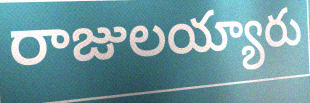
రాజులయ్యారు